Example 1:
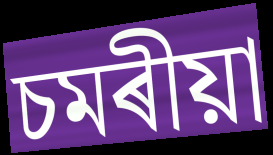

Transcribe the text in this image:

চমৰীয়া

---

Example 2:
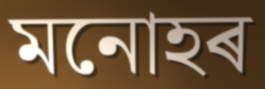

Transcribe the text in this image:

মনোহৰ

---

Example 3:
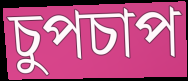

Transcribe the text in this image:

চুপচাপ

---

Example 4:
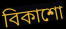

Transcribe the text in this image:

বিকাশো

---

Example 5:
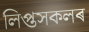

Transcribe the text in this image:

লিপ্তসকলৰ